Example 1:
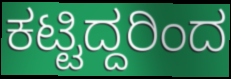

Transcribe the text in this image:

ಕಟ್ಟಿದ್ದರಿಂದ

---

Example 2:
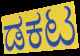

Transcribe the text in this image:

ಡಕಟ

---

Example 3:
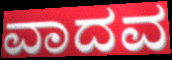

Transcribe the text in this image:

ವಾದವ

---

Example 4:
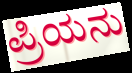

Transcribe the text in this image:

ಪ್ರಿಯನು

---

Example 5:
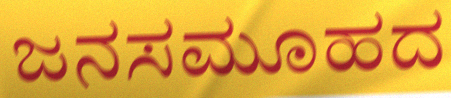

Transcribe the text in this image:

ಜನಸಮೂಹದ